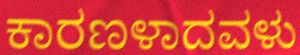
ಕಾರಣಳಾದವಳು